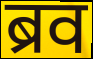
ब्रव